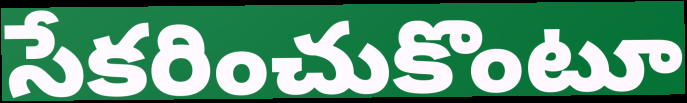
సేకరించుకొంటూ